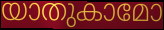
യാതുകാമോ